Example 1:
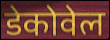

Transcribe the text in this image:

डेकोवेल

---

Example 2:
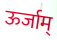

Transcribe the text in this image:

ऊर्जाम्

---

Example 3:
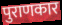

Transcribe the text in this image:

पुराणकार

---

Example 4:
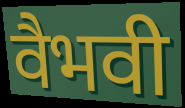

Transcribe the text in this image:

वैभवी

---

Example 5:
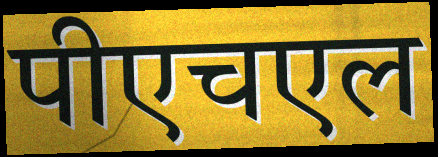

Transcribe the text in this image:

पीएचएल